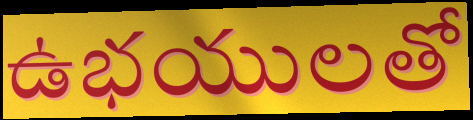
ఉభయులతో